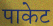
पाकेट